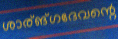
ശാര്ങ്ഗദേവന്റെ